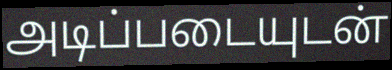
அடிப்படையுடன்